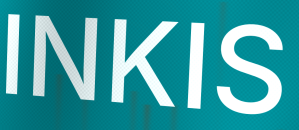
INKIS